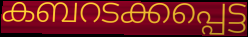
കബറടക്കപ്പെട്ട